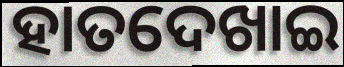
ହାତଦେଖାଇ